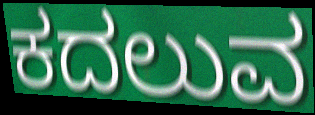
ಕದಲುವ